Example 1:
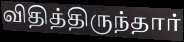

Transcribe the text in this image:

விதித்திருந்தார்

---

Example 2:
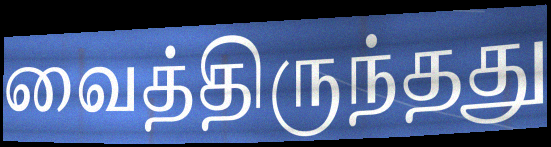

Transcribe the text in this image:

வைத்திருந்தது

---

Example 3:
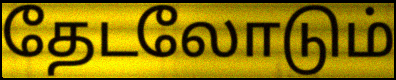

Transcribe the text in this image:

தேடலோடும்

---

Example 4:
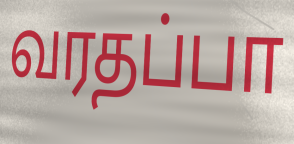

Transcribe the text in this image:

வரதப்பா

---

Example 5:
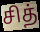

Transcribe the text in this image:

சித்